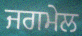
ਜਗਮੇਲ